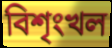
বিশৃংখল